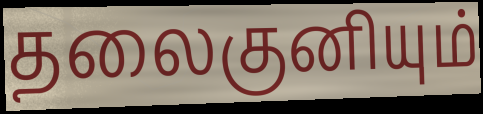
தலைகுனியும்